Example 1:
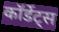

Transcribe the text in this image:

कॉर्डेट्स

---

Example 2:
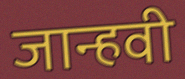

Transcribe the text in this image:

जान्‍हवी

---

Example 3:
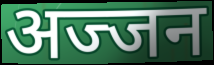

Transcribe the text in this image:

अज्जन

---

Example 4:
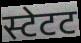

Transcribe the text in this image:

स्टेटट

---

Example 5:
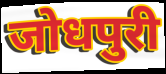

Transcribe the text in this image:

जोधपुरी